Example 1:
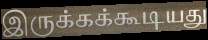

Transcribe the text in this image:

இருக்கக்கூடியது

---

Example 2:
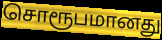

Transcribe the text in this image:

சொரூபமானது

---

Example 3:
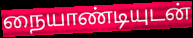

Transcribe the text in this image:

நையாண்டியுடன்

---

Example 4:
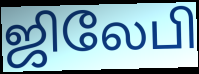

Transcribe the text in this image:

ஜிலேபி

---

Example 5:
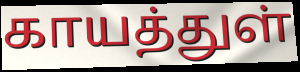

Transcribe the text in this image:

காயத்துள்